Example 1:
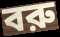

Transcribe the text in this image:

বরু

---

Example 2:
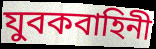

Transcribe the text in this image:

যুবকবাহিনী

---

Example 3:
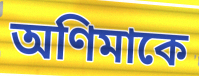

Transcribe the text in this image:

অণিমাকে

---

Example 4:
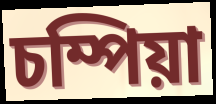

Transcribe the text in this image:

চম্পিয়া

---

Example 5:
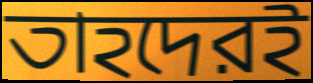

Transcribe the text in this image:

তাহদেরই